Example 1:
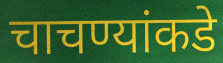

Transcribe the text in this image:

चाचण्यांकडे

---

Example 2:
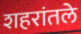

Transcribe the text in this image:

शहरांतले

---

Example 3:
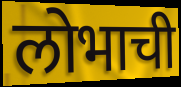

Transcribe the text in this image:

लोभाची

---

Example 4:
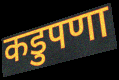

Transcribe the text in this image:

कडुपणा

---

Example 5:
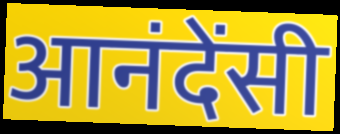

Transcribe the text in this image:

आनंदेंसी